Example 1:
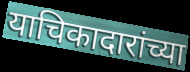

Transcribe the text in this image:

याचिकादारांच्या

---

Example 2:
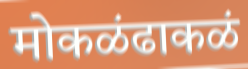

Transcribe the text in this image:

मोकळंढाकळं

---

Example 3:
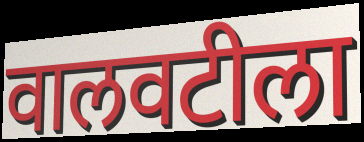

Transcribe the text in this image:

वालवटीला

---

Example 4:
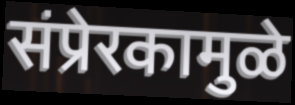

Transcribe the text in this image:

संप्रेरकामुळे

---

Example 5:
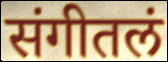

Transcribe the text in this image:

संगीतलं